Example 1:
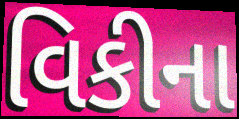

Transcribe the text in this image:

વિકીના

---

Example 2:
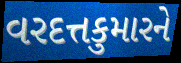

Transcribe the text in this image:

વરદત્તકુમારને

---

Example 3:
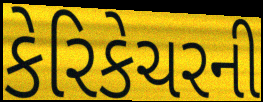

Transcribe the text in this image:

કેરિકેચરની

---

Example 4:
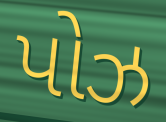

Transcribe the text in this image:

પોઝ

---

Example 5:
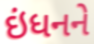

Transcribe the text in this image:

ઇંધનને